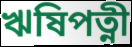
ঋষিপত্নী